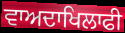
ਵਾਅਦਾਖਿਲਾਫੀ